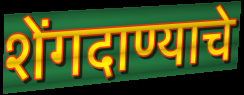
शेंगदाण्याचे